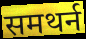
समथर्न